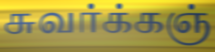
சுவர்க்கஞ்